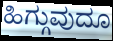
ಹಿಗ್ಗುವುದೂ